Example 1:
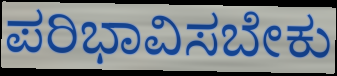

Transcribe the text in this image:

ಪರಿಭಾವಿಸಬೇಕು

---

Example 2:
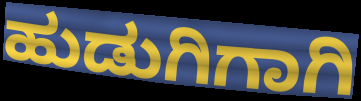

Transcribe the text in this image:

ಹುಡುಗಿಗಾಗಿ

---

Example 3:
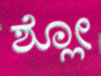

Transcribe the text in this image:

ಶ್ಲೋ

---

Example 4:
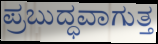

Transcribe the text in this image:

ಪ್ರಬುದ್ಧವಾಗುತ್ತ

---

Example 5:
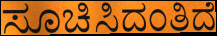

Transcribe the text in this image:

ಸೂಚಿಸಿದಂತಿದೆ